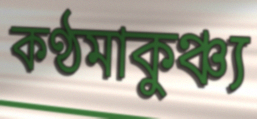
কণ্ঠমাকুঞ্চ্য